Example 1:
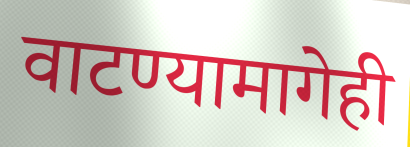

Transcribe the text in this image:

वाटण्यामागेही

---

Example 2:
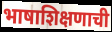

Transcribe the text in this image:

भाषाशिक्षणाची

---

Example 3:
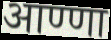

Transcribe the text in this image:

आण्णा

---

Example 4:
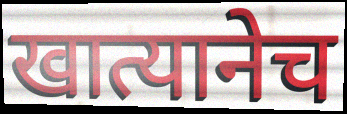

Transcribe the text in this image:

खात्यानेच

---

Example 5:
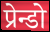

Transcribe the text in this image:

प्रेन्डो